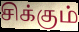
சிக்கும்